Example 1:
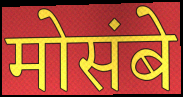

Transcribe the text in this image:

मोसंबे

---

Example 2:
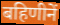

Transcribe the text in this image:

बहिणीनें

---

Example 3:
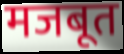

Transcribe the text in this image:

मजबूत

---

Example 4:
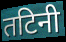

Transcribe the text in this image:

तटिनी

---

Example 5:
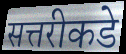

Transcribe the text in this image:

सत्तरीकडे